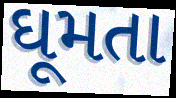
ઘૂમતા